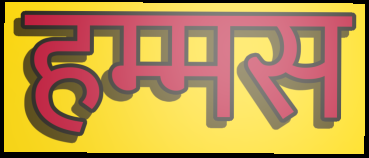
हम्मस